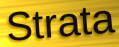
Strata